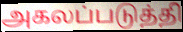
அகலப்படுத்தி